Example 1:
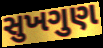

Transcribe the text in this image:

સુખગુણ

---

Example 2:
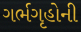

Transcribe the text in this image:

ગર્ભગૃહોની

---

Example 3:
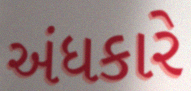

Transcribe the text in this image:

અંધકારે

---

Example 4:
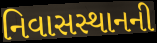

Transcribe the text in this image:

નિવાસસ્થાનની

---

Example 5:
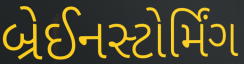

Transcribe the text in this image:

બ્રેઈનસ્ટોર્મિંગ